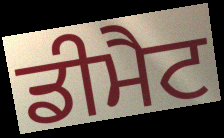
ਡੀਮੈਟ